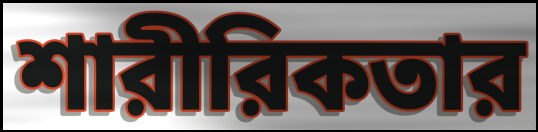
শারীরিকতার